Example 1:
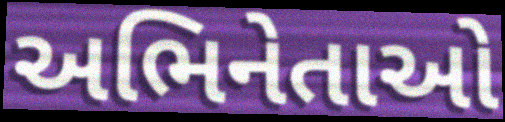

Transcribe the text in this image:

અભિનેતાઓ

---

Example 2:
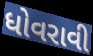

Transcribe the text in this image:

ધોવરાવી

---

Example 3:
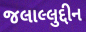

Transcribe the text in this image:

જલાલ્લુદ્દીન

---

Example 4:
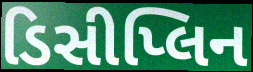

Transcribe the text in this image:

ડિસીપ્લિન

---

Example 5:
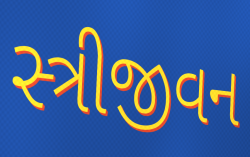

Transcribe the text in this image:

સ્ત્રીજીવન